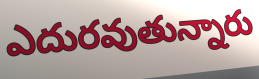
ఎదురవుతున్నారు